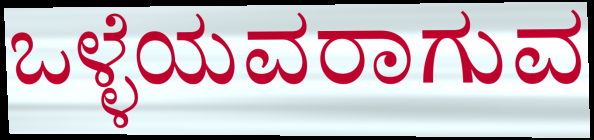
ಒಳ್ಳೆಯವರಾಗುವ